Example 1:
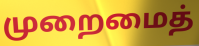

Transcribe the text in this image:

முறைமைத்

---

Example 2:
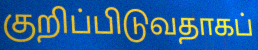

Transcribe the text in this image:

குறிப்பிடுவதாகப்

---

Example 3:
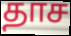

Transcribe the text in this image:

தாச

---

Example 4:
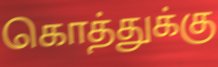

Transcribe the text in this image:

கொத்துக்கு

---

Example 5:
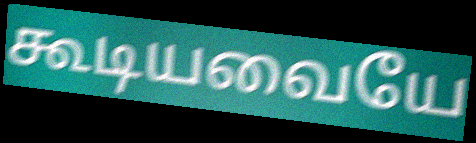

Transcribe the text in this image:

கூடியவையே